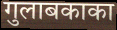
गुलाबकाका